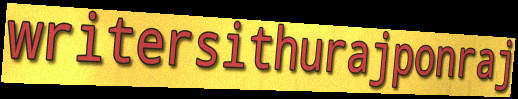
writersithurajponraj